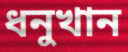
ধনুখান